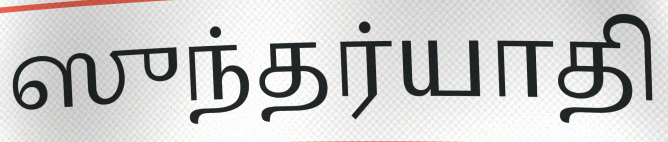
ஸுந்தர்யாதி